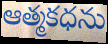
ఆత్మకధను